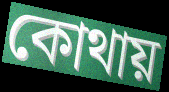
কোথায়